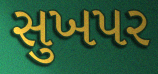
સુખપર